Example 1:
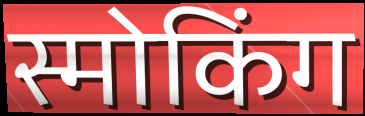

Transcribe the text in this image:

स्‍मोकिंग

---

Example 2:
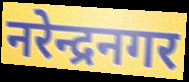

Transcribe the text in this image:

नरेन्द्रनगर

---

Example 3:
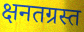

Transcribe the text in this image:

क्षनतग्रस्त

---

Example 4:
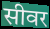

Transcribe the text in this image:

सीवर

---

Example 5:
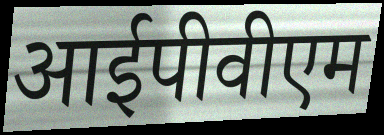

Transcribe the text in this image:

आईपीवीएम